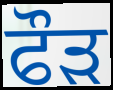
ਫੌਡ਼